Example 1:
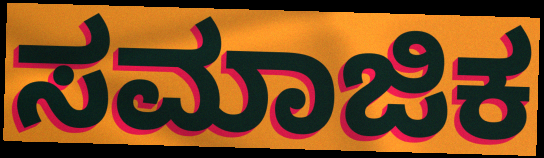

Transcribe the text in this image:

ಸಮಾಜಿಕ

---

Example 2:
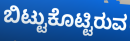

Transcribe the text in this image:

ಬಿಟ್ಟುಕೊಟ್ಟಿರುವ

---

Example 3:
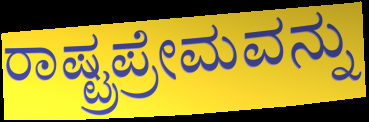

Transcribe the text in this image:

ರಾಷ್ಟ್ರಪ್ರೇಮವನ್ನು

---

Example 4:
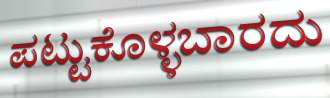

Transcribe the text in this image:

ಪಟ್ಟುಕೊಳ್ಳಬಾರದು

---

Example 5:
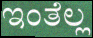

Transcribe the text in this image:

ಇಂತೆಲ್ಲ